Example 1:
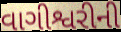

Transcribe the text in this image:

વાગીશ્વરીની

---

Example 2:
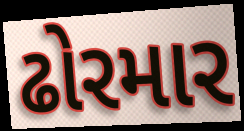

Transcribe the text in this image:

ઢોરમાર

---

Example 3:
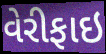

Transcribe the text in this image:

વેરીફાઇ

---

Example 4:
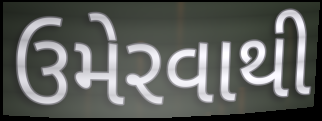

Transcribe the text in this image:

ઉમેરવાથી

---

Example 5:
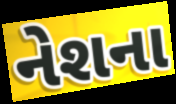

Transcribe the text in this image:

નેશના